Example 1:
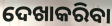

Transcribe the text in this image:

ଦେଖାକରିବା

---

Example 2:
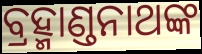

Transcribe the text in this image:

ବ୍ରହ୍ମାଣ୍ଡନାଥଙ୍କ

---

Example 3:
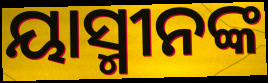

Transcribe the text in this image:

ୟାସ୍ମୀନଙ୍କ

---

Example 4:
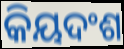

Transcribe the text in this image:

କିୟଦଂଶ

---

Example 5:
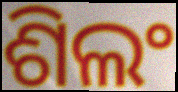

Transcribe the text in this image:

ଶିଲଂ